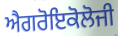
ਐਗਰੋਇਕੋਲੋਜੀ